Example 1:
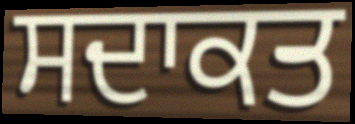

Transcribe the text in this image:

ਸਦਾਕਤ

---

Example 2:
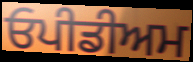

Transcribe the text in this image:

ਓਪੀਡੀਅਮ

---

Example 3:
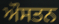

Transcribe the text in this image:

ਔਸਤਨ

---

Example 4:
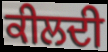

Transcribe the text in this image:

ਕੀਲਦੀ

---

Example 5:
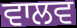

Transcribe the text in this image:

ਵਾਲਵ